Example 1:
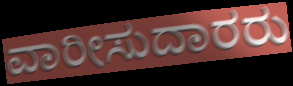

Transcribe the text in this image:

ವಾರೀಸುದಾರರು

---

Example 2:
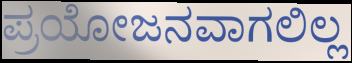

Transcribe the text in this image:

ಪ್ರಯೋಜನವಾಗಲಿಲ್ಲ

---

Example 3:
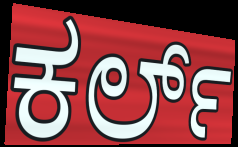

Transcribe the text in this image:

ಕರ್ಲ್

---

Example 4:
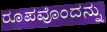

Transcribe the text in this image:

ರೂಪವೊಂದನ್ನು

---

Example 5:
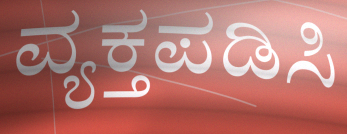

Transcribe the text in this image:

ವ್ಯಕ್ತಪಡಿಸಿ